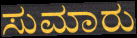
ಸುಮಾರು